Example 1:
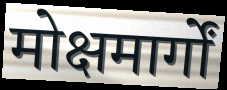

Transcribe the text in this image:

मोक्षमार्गों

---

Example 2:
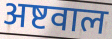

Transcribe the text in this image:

अष्टवाल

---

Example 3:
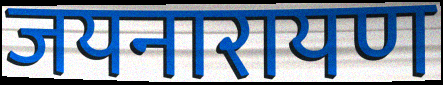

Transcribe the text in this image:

जयनारायण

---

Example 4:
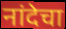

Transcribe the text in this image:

नांदेचा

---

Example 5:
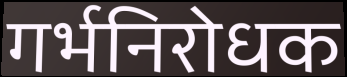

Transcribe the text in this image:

गर्भनिरोधक